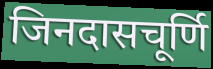
जिनदासचूर्णि